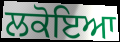
ਲਕੋਇਆ